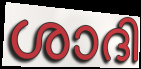
ശാദി